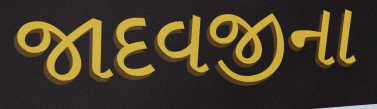
જાદવજીના